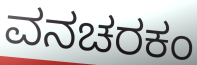
ವನಚರಕಂ